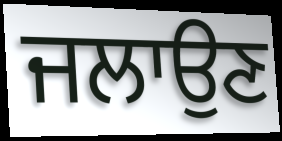
ਜਲਾਉਣ